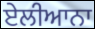
ਏਲੀਆਨਾ